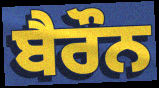
ਬੈਰੌਨ